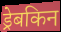
ड्रेबकिन